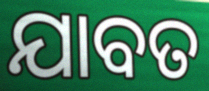
ଯାବତ